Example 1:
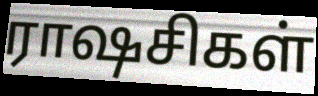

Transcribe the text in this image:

ராஷசிகள்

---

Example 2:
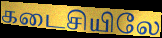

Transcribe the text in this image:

கடைசியிலே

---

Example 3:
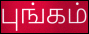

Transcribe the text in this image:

புங்கம்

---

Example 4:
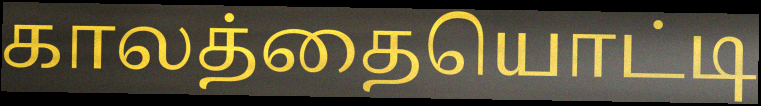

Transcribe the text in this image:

காலத்தையொட்டி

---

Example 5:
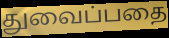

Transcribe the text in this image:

துவைப்பதை